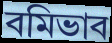
বমিভাব